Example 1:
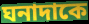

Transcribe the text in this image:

ঘনাদাকে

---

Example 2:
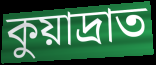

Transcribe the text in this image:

কুয়াদ্রাত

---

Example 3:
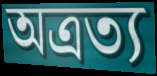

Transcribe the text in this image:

অত্রত্য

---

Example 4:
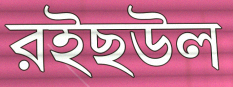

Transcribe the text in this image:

রইছউল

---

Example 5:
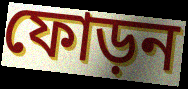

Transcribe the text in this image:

ফোড়ন